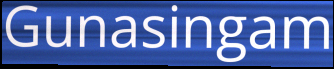
Gunasingam